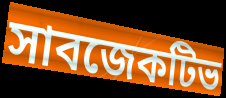
সাবজেকটিভ